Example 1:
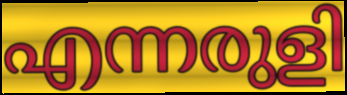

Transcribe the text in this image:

എന്നരുളി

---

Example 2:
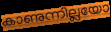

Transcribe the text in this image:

കാണുന്നില്ലയോ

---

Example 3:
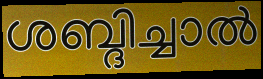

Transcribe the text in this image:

ശബ്ദിച്ചാൽ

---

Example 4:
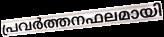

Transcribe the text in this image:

പ്രവർത്തനഫലമായി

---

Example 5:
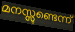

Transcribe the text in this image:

മനസ്സുണ്ടെന്ന്